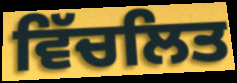
ਵਿੱਚਲਿਤ